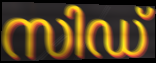
സിഡ്